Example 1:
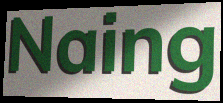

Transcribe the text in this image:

Naing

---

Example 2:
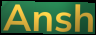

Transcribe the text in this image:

Ansh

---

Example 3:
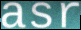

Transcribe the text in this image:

asr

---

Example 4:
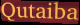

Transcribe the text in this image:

Qutaiba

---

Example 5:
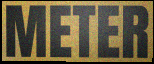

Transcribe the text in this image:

METER